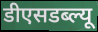
डीएसडब्ल्यू